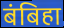
बंबिहा